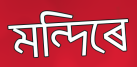
মন্দিৰে